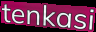
tenkasi